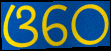
ଓଠେ